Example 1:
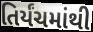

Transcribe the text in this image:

તિર્યંચમાંથી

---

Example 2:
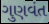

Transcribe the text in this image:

ગુણવંત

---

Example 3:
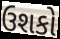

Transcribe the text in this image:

ઉશકો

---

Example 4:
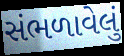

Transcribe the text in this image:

સંભળાવેલું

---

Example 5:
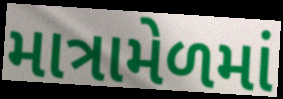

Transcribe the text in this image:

માત્રામેળમાં